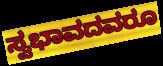
ಸ್ವಭಾವದವರೂ